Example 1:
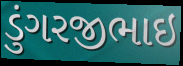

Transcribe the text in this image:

ડુંગરજીભાઇ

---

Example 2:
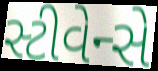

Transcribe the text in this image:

સ્ટીવેન્સે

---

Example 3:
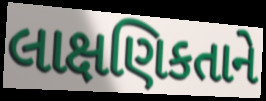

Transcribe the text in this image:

લાક્ષણિકતાને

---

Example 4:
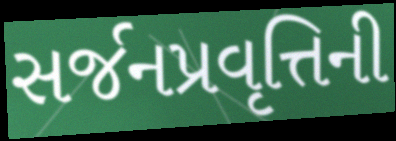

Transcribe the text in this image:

સર્જનપ્રવૃત્તિની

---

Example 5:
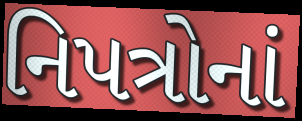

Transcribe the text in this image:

નિપત્રોનાં